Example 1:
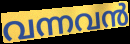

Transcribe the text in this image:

വന്നവൻ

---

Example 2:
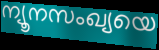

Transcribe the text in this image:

ന്യൂനസംഖ്യയെ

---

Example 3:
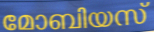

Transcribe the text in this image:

മോബിയസ്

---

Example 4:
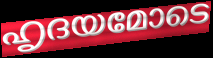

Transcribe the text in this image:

ഹൃദയമോടെ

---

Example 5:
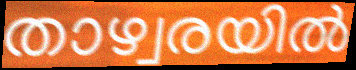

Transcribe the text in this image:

താഴ്വരയിൽ